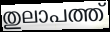
തുലാപത്ത്